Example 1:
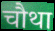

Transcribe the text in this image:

चौथा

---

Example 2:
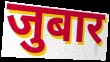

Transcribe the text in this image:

जुबार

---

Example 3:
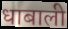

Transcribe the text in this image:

धाबाली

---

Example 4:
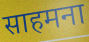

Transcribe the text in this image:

साहमना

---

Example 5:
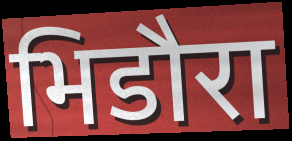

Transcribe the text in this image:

भिडौरा